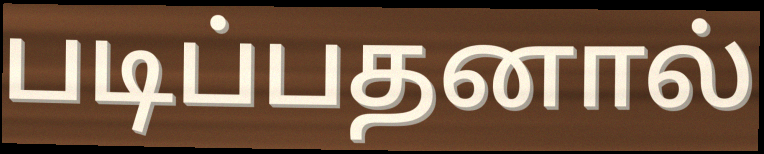
படிப்பதனால்